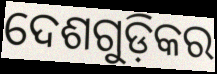
ଦେଶଗୁଡ଼ିକର